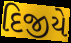
દિજીયે